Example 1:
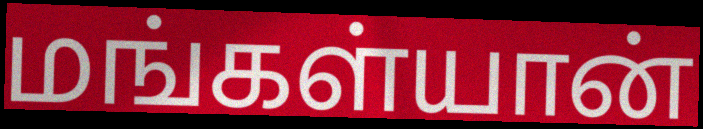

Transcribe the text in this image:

மங்கள்யான்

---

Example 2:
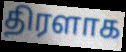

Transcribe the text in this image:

திரளாக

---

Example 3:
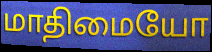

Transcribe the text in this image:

மாதிமையோ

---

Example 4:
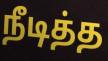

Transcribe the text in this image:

நீடித்த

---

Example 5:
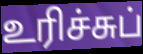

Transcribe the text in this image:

உரிச்சுப்